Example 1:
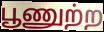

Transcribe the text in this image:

பூணுற்ற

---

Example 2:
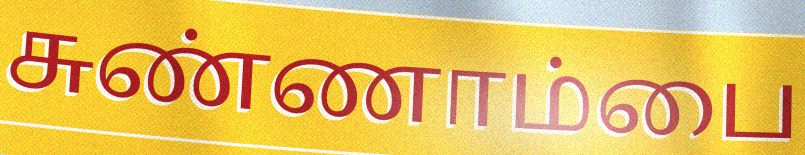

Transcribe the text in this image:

சுண்ணாம்பை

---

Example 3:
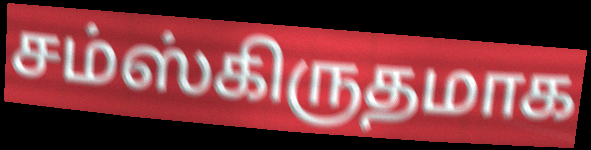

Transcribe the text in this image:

சம்ஸ்கிருதமாக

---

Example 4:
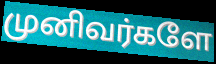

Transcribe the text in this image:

முனிவர்களே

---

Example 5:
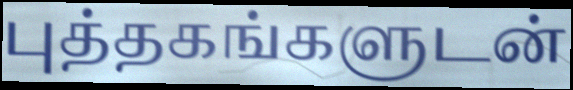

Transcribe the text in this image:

புத்தகங்களுடன்